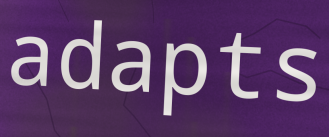
adapts